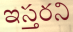
ఇస్తరని